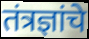
तंत्रज्ञांचे